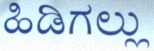
ಹಿಡಿಗಲ್ಲು